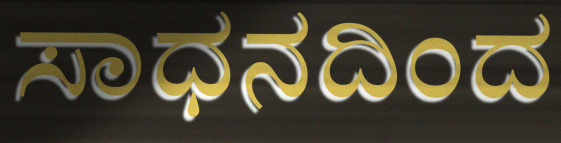
ಸಾಧನದಿಂದ